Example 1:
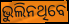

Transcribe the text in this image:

ଭୁଲିନଥିବେ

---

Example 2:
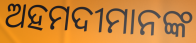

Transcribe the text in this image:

ଅହମଦୀମାନଙ୍କ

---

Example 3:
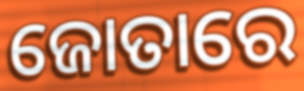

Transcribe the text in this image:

ଜୋତାରେ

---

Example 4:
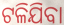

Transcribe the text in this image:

ଟଳିଯିବା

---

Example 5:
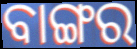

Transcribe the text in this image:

ବାଙ୍ଗର